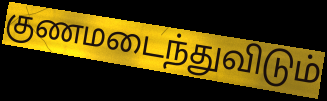
குணமடைந்துவிடும்